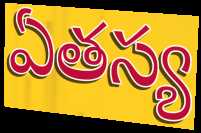
ఏతస్య